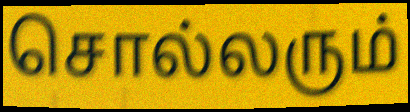
சொல்லரும்